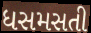
ધસમસતી